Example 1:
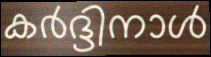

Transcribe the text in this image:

കർദ്ദിനാൾ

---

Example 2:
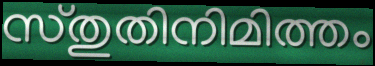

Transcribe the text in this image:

സ്തുതിനിമിത്തം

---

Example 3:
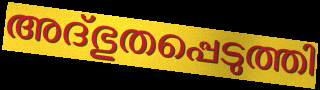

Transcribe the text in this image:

അദ്ഭുതപ്പെടുത്തി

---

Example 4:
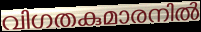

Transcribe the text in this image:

വിഗതകുമാരനിൽ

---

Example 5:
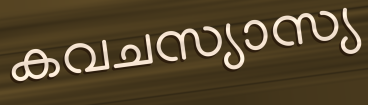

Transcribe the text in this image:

കവചസ്യാസ്യ